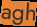
agh